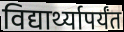
विद्यार्थ्यापर्यंत